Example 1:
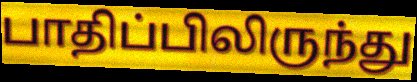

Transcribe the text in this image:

பாதிப்பிலிருந்து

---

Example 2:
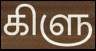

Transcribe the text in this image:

கிளு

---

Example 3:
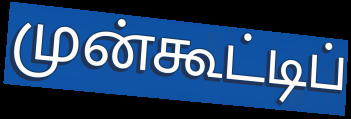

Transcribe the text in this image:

முன்கூட்டிப்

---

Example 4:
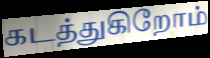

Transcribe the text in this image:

கடத்துகிறோம்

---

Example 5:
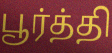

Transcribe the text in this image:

பூர்த்தி